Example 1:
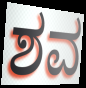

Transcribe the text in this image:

ಶವ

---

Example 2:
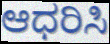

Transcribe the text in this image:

ಆಧರಿಸಿ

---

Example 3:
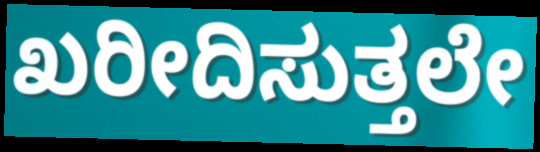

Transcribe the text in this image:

ಖರೀದಿಸುತ್ತಲೇ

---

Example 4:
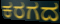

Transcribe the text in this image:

ಕರಗದ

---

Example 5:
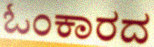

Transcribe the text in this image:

ಓಂಕಾರದ